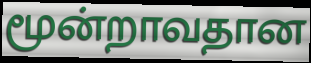
மூன்றாவதான